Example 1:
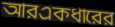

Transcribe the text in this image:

আরএকধারের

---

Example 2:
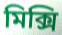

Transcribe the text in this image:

মিক্সি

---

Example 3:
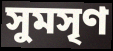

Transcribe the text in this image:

সুমসৃণ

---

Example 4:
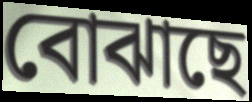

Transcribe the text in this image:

বোঝাছে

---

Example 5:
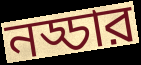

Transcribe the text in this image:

নড্ডার